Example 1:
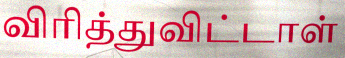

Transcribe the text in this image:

விரித்துவிட்டாள்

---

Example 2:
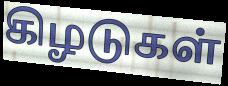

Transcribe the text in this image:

கிழடுகள்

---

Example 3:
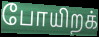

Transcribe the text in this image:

போயிறக்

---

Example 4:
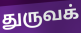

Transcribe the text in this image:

துருவக்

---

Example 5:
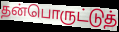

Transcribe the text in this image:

தன்பொருட்டுத்